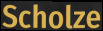
Scholze